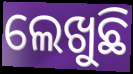
ଲେଖୁଛି